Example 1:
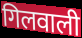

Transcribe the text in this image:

गिलवाली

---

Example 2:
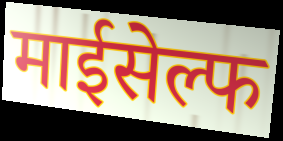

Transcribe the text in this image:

माईसेल्फ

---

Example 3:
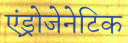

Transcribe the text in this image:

एंड्रोजेनेटिक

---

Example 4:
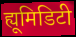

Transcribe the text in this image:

ह्यूमिडिटी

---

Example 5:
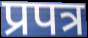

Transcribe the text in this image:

प्रपत्र